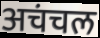
अचंचल